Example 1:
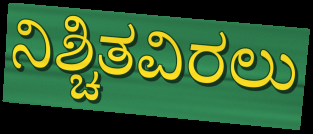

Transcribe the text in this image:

ನಿಶ್ಚಿತವಿರಲು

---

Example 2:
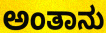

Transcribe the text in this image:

ಅಂತಾನು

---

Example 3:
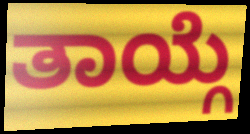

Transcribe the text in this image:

ತಾಯ್ಗೆ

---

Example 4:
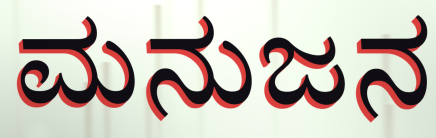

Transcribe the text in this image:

ಮನುಜನ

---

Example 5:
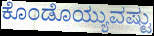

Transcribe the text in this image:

ಕೊಂಡೊಯ್ಯುವಷ್ಟು